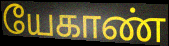
யேகாண்